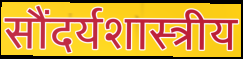
सौंदर्यशास्त्रीय